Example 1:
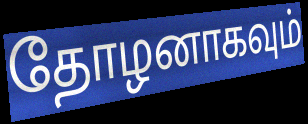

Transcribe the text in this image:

தோழனாகவும்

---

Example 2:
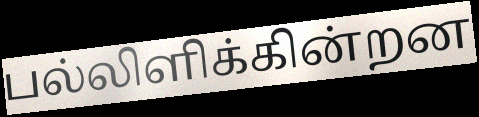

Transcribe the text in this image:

பல்லிளிக்கின்றன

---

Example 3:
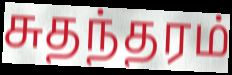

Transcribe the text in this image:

சுதந்தரம்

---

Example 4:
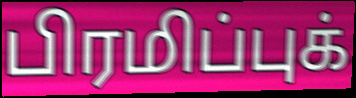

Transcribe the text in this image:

பிரமிப்புக்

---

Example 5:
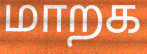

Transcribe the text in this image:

மாறக